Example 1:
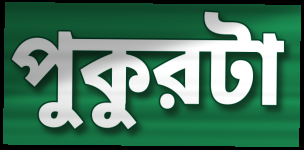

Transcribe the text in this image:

পুকুরটা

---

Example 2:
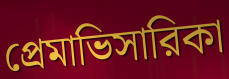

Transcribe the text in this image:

প্রেমাভিসারিকা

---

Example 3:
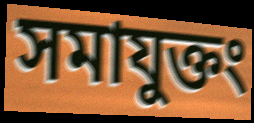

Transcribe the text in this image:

সমাযুক্তং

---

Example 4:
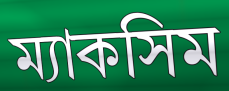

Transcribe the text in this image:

ম্যাকসিম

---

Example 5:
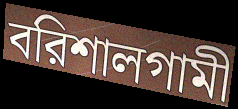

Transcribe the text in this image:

বরিশালগামী